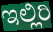
ಇಲ್ಲಿರಿ